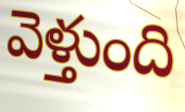
వెళ్తుంది